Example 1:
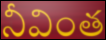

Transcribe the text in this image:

నీవింత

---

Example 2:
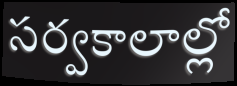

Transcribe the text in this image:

సర్వకాలాల్లో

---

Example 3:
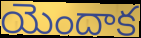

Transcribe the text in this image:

యెందాక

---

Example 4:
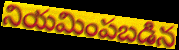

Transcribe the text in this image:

నియమింపబడిన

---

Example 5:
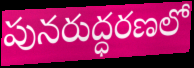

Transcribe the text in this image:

పునరుద్ధరణలో